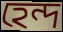
হেন্দ